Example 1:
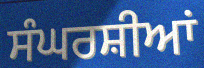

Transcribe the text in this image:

ਸੰਘਰਸ਼ੀਆਂ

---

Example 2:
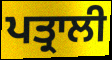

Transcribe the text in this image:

ਪਤ੍ਰਾਲੀ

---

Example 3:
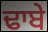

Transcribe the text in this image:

ਢਾਬੇ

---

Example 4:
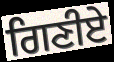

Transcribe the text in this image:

ਗਿਣੀਏ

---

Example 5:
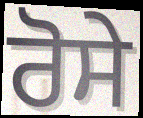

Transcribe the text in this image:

ਰੋਸੇ